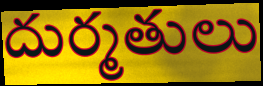
దుర్మతులు